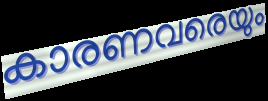
കാരണവരെയും